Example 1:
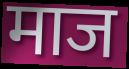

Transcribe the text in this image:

माज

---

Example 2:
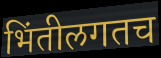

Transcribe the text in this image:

भिंतीलगतच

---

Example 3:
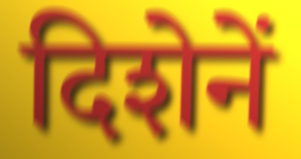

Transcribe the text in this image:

दिशेनें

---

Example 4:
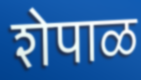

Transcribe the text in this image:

शेपाळ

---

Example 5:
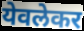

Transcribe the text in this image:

येवलेकर